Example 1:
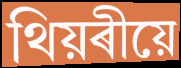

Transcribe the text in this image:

থিয়ৰীয়ে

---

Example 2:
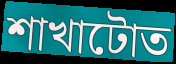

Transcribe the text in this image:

শাখাটোত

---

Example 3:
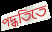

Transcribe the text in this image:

পদ্ধতিতে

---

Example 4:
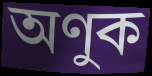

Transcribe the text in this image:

অণুক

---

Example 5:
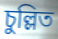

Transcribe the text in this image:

চুল্লিত